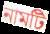
নামটি